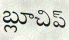
బ్లూచిప్